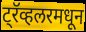
ट्रॅव्हलरमधून